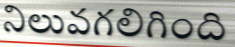
నిలువగలిగింది